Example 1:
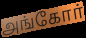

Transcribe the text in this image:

அங்கோர்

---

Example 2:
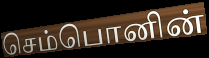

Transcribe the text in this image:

செம்பொனின்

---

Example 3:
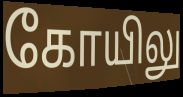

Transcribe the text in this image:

கோயிலு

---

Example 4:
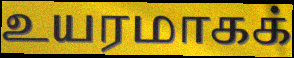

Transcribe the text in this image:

உயரமாகக்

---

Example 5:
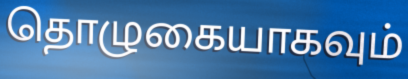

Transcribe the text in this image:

தொழுகையாகவும்